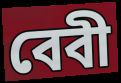
বেবী